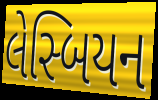
લેસ્બિયન